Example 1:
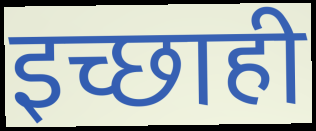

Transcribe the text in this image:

इच्छाही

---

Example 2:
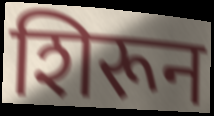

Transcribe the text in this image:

शिरून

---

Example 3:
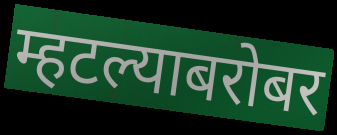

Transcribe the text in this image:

म्हटल्याबरोबर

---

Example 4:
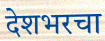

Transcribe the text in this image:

देशभरचा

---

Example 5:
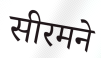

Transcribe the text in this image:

सीरमने